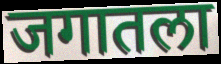
जगातला